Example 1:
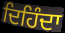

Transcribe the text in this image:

ਦਿਹਿੰਦਾ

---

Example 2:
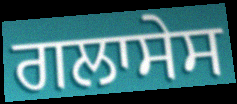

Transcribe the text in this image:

ਗਲਾਸੇਸ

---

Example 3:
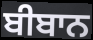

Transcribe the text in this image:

ਬੀਬਾਨ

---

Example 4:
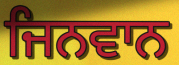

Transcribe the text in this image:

ਜਿਨਵਾਨ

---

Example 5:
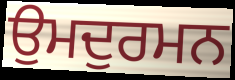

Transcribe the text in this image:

ਉਮਦੁਰਮਨ